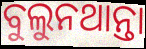
ବୁଲୁନଥାନ୍ତା